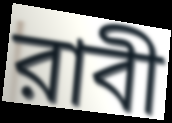
রাবী